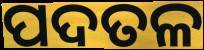
ପଦତଳ